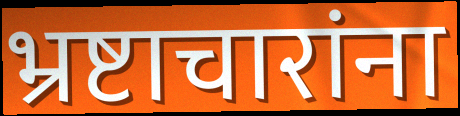
भ्रष्टाचारांना